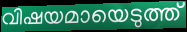
വിഷയമായെടുത്ത്